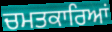
ਚਮਤਕਾਰਿਆਂ